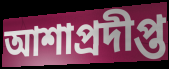
আশাপ্রদীপ্ত